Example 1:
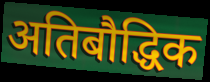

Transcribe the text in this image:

अतिबौद्धिक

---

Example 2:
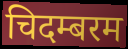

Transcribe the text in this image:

चिदम्बरम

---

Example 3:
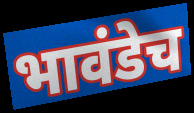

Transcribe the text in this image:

भावंडेच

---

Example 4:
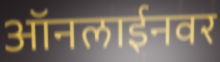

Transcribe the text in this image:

ऑनलाईनवर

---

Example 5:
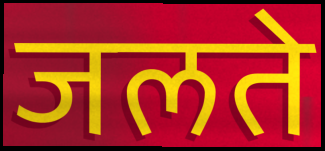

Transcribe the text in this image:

जलते